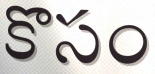
కొసం